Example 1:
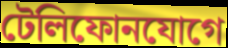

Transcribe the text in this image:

টেলিফোনযোগে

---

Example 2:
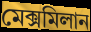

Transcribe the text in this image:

মেক্সমিলান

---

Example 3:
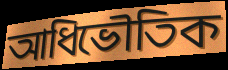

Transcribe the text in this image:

আধিভৌতিক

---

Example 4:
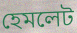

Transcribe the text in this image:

হেমলেট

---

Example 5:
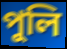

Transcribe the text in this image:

পুলি